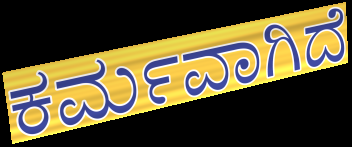
ಕರ್ಮವಾಗಿದೆ